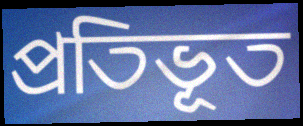
প্রতিভূত